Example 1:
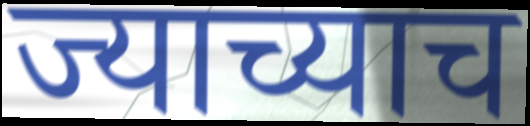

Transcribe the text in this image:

ज्याच्याच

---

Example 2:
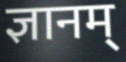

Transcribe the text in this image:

ज्ञानम्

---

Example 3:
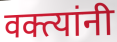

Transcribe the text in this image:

वक्त्यांनी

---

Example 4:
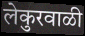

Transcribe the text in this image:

लेकुरवाळी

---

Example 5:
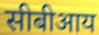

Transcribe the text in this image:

सीबीआय